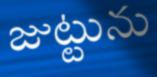
జుట్టును